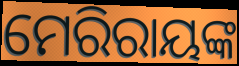
ମେରିରାୟଙ୍କ